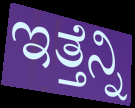
ಇತ್ತೆನ್ನಿ